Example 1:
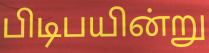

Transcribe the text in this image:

பிடிபயின்று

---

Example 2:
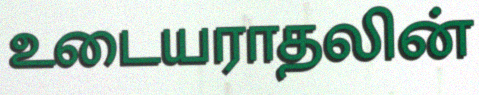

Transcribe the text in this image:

உடையராதலின்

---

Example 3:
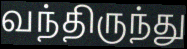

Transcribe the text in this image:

வந்திருந்து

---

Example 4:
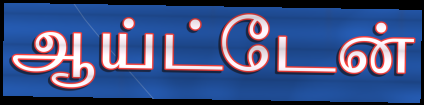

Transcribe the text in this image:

ஆய்ட்டேன்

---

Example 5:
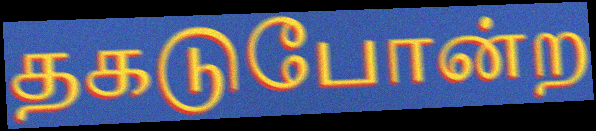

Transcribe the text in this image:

தகடுபோன்ற